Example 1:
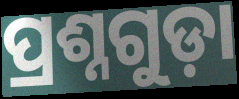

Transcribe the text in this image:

ପ୍ରଶ୍ନଗୁଡ଼ା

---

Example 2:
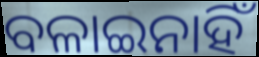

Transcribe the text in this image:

ବଳାଇନାହିଁ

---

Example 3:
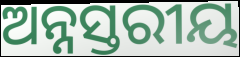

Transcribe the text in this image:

ଅନ୍ନସ୍ତରୀୟ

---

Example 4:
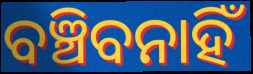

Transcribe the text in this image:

ବଞ୍ଚିବନାହିଁ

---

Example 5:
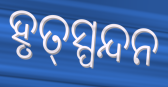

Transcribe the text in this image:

ହୃତ୍‍ସ୍ପନ୍ଦନ